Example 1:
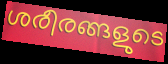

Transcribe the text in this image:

ശരീരങ്ങളുടെ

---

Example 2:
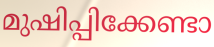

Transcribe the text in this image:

മുഷിപ്പിക്കേണ്ടാ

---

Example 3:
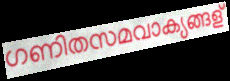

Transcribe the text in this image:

ഗണിതസമവാക്യങ്ങള്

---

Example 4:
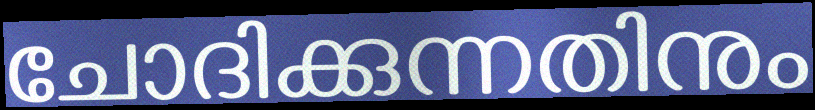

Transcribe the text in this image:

ചോദിക്കുന്നതിനും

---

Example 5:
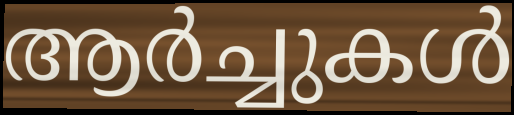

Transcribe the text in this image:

ആർച്ചുകൾ